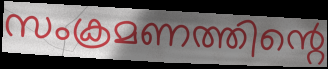
സംക്രമണത്തിന്റെ